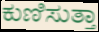
ಕುಣಿಸುತ್ತಾ